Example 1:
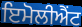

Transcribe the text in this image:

ਇਮੋਲੀਐਂਟ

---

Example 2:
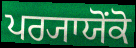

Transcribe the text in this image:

ਪਰ੍ਯਾਯੋਂਕੋ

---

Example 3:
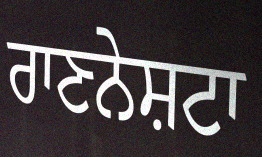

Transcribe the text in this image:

ਰਾਣਨੇਸ਼ਟਾ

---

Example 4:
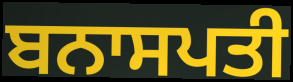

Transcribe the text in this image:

ਬਨਾਸਪਤੀ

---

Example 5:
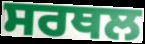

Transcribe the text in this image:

ਸਰਥਲ